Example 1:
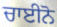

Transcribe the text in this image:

ਚਾਈਨੋ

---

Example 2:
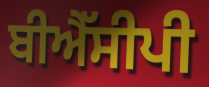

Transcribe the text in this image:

ਬੀਐੱਸੀਪੀ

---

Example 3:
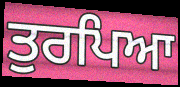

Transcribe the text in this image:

ਤੁਰਪਿਆ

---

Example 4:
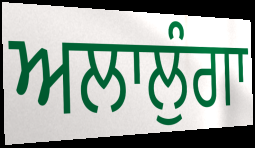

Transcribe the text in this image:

ਅਲਾਲੁੰਗਾ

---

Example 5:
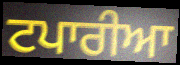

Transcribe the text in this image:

ਟਪਾਰੀਆ